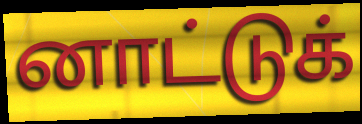
னாட்டுக்